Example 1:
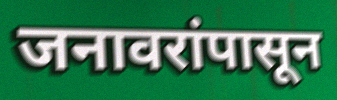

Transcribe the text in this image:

जनावरांपासून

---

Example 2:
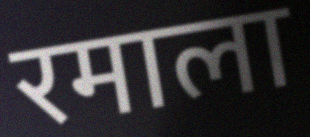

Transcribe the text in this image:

रमाला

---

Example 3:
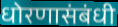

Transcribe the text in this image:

धोरणासंबंधी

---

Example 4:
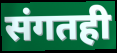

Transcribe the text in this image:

संगतही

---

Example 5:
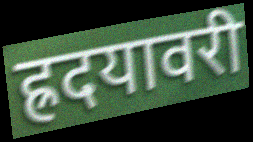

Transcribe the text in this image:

ह्रदयावरी